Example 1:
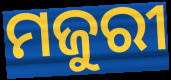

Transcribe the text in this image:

ମଜୁରୀ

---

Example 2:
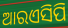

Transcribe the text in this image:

ଆରଏସିପି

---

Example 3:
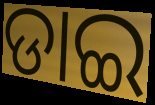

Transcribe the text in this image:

ଡାଇ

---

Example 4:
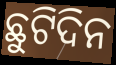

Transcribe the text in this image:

ଛୁଟିଦିନ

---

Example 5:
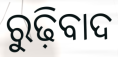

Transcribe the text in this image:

ରୁଢ଼ିବାଦ